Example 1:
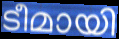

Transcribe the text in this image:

ടീമായി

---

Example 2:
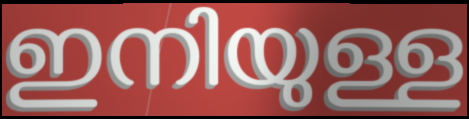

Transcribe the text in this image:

ഇനിയുള്ള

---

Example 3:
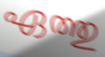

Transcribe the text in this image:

ഏത്തു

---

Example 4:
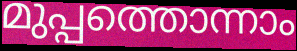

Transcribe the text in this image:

മുപ്പത്തൊന്നാം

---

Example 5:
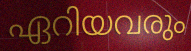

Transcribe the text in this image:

ഏറിയവരും